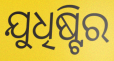
ଯୁଧିଷ୍ଟିର